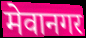
मेवानगर